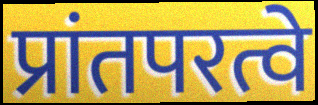
प्रांतपरत्वे